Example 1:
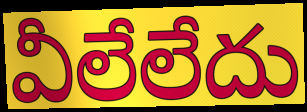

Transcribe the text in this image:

వీలేలేదు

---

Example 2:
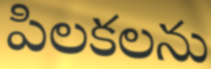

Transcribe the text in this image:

పిలకలను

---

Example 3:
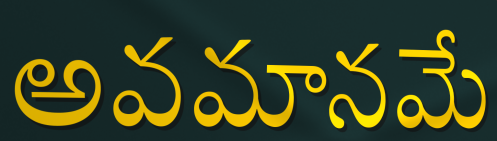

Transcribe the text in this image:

అవమానమే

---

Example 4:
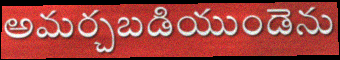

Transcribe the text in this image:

అమర్చబడియుండెను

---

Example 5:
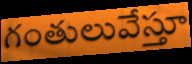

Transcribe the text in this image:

గంతులువేస్తూ